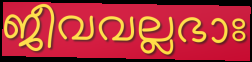
ജീവവല്ലഭാഃ